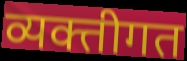
व्यक्तीगत